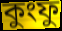
কুংফু